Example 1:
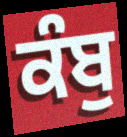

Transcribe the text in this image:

ਕੰਬੁ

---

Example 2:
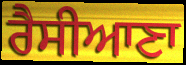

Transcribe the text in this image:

ਰੈਸੀਆਣਾ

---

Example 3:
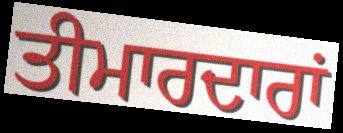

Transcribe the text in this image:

ਤੀਮਾਰਦਾਰਾਂ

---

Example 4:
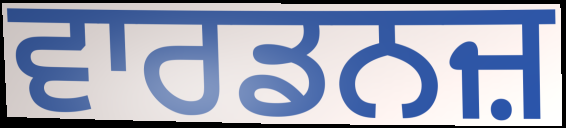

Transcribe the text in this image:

ਵਾਰਡਨਜ਼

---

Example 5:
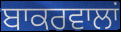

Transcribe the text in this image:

ਬਾਕਰਵਾਲਾਂ